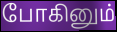
போகினும்